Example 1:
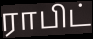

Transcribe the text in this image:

ராபிட்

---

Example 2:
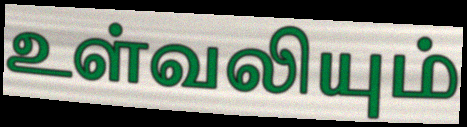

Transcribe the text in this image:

உள்வலியும்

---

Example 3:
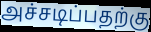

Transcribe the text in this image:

அச்சடிப்பதற்கு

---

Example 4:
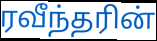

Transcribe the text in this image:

ரவீந்தரின்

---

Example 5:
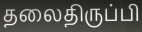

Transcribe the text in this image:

தலைதிருப்பி